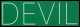
DEVIL